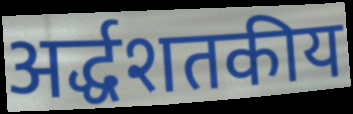
अर्द्धशतकीय